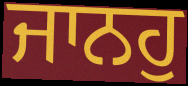
ਜਾਨਹੁ